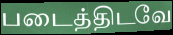
படைத்திடவே